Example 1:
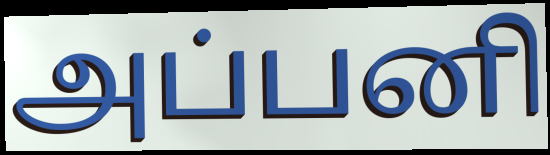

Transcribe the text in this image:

அப்பனி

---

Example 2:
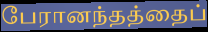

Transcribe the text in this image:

பேரானந்தத்தைப்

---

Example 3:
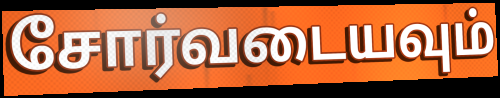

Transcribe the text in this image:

சோர்வடையவும்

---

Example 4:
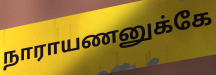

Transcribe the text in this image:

நாராயணனுக்கே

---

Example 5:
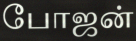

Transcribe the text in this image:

போஜன்